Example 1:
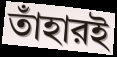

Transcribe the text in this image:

তাঁহারই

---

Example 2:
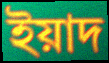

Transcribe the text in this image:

ইয়াদ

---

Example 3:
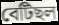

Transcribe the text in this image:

বেটিছল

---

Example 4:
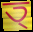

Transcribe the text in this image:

ত্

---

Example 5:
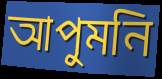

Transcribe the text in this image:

আপুমনি